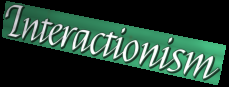
Interactionism